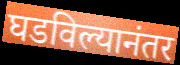
घडविल्यानंतर